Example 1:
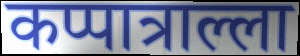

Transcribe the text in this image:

कप्पात्राल्ला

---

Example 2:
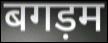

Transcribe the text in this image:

बगड़म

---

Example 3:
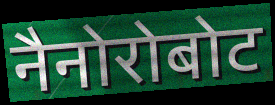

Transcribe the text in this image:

नैनोरोबोट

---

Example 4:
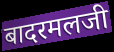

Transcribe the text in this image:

बादरमलजी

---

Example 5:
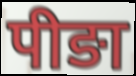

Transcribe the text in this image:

पीङा